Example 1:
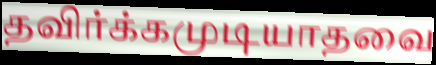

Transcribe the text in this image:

தவிர்க்கமுடியாதவை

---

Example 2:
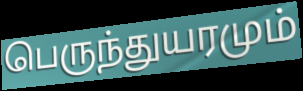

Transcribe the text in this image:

பெருந்துயரமும்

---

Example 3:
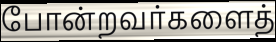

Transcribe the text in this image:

போன்றவர்களைத்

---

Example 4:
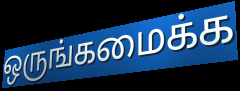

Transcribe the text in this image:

ஒருங்கமைக்க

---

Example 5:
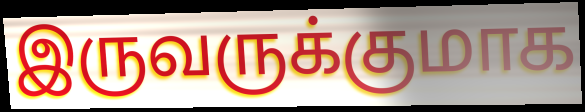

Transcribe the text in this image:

இருவருக்குமாக